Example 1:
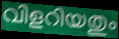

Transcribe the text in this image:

വിളറിയതും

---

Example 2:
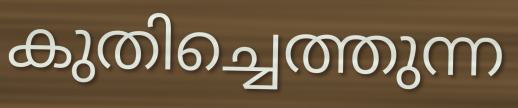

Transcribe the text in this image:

കുതിച്ചെത്തുന്ന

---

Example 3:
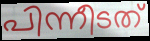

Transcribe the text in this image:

പിന്നീടത്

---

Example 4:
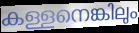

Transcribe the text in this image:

കള്ളനെങ്കിലും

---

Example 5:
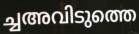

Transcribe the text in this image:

ച്ചഅവിടുത്തെ